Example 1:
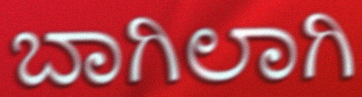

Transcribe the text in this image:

ಬಾಗಿಲಾಗಿ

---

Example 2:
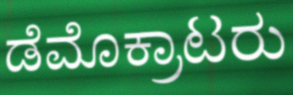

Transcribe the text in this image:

ಡೆಮೊಕ್ರಾಟರು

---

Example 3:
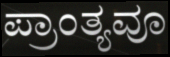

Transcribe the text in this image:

ಪ್ರಾಂತ್ಯವೂ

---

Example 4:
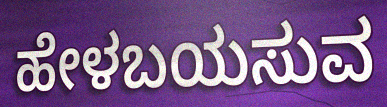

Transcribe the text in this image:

ಹೇಳಬಯಸುವ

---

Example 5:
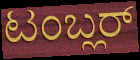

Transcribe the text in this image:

ಟಂಬ್ಲರ್